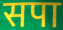
सपा